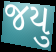
જયુ